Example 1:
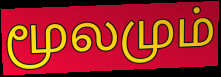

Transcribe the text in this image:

மூலமும்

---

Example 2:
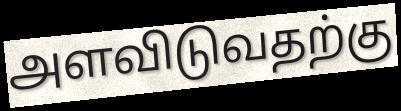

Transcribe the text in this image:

அளவிடுவதற்கு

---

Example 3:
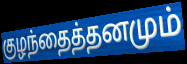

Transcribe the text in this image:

குழந்தைத்தனமும்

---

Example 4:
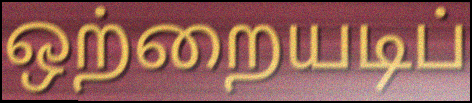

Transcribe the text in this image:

ஒற்றையடிப்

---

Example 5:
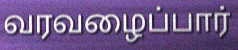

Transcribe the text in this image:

வரவழைப்பார்